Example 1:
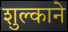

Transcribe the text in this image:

शुल्काने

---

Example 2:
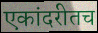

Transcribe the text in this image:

एकांदरीतच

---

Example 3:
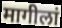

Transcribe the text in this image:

मागीलां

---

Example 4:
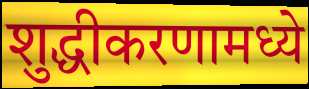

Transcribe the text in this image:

शुद्धीकरणामध्ये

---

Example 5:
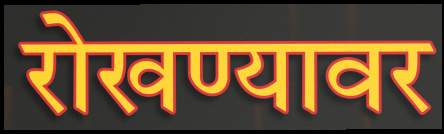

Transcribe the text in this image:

रोखण्यावर